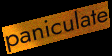
paniculate